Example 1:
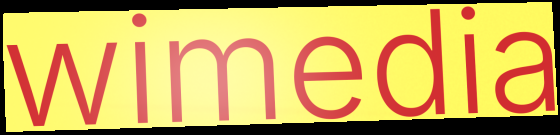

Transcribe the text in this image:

wimedia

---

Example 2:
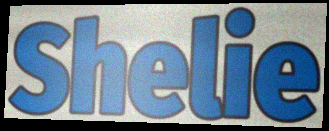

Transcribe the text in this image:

Shelie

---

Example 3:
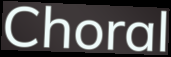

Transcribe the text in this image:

Choral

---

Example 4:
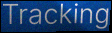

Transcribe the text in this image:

Tracking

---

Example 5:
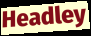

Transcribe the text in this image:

Headley